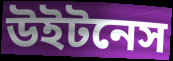
উইটনেস